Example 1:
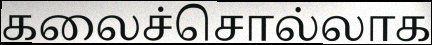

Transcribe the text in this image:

கலைச்சொல்லாக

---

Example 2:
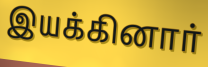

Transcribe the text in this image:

இயக்கினார்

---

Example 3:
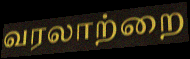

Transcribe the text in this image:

வரலாற்றை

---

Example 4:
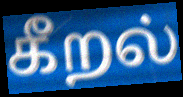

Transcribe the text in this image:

கீறல்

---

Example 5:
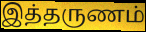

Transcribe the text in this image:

இத்தருணம்